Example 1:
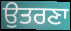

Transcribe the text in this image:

ਉਤਰਣਾ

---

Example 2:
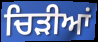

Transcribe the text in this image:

ਚਿੜੀਆਂ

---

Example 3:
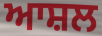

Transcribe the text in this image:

ਆਸ਼ਲ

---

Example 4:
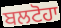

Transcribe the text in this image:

ਬਲਟੋਹਾ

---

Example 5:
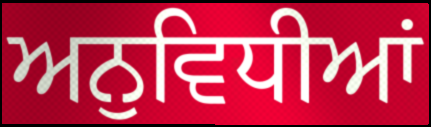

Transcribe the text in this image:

ਅਨੁਵਿਧੀਆਂ